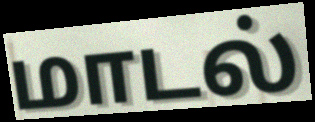
மாடல்